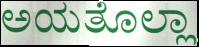
ಅಯತೊಲ್ಲಾ